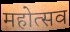
महोत्सव